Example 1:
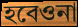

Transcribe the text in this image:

হবেওনা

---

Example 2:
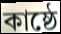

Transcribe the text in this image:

কাষ্ঠে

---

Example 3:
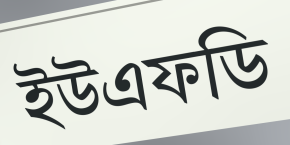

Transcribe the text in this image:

ইউএফডি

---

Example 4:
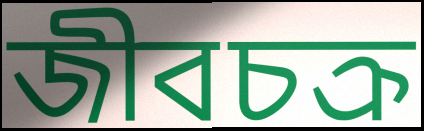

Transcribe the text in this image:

জীবচক্র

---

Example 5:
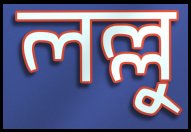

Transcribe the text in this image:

লল্লু